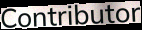
Contributor